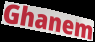
Ghanem